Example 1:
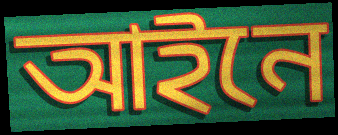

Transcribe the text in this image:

আইনে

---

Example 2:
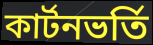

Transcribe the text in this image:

কার্টনভর্তি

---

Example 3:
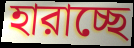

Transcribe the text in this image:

হারাচ্ছে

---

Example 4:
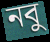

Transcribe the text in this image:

নবু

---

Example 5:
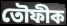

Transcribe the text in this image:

তৌফীক